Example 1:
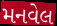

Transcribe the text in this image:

મનવેલ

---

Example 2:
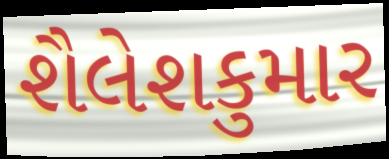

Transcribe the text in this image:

શૈલેશકુમાર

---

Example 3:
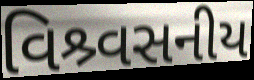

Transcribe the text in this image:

વિશ્ર્વસનીય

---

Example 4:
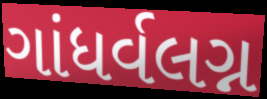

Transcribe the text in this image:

ગાંધર્વલગ્ન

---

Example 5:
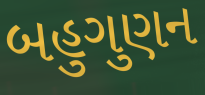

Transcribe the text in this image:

બહુગુણન